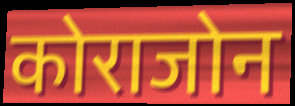
कोराजोन